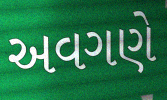
અવગણે